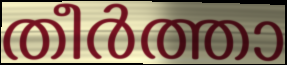
തീർത്താ